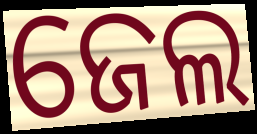
ଜେଲ